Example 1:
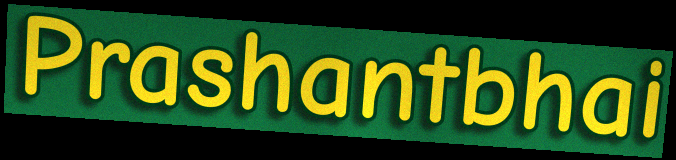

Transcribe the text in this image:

Prashantbhai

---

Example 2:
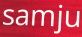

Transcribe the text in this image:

samju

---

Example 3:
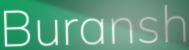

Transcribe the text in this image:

Buransh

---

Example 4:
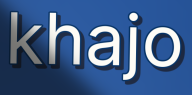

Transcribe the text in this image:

khajo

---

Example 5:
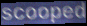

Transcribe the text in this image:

scooped